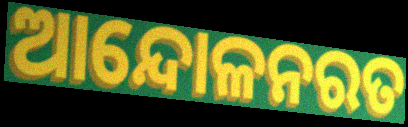
ଆନ୍ଦୋଳନରତ